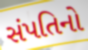
સંપતિનો